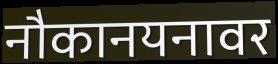
नौकानयनावर